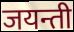
जयन्ती